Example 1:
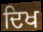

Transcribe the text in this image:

ਦਿਖ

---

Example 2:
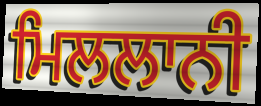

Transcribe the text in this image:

ਮਿਲਲਾਨੀ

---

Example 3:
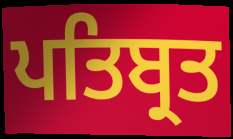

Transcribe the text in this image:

ਪਤਿਬ੍ਰਤ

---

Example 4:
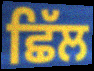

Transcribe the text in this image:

ਛਿੱਲ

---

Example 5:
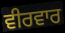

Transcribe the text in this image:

ਵੀਰਵਾਰ